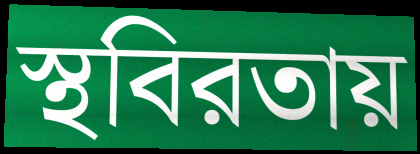
স্থবিরতায়